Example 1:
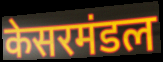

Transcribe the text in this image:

केसरमंडल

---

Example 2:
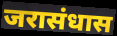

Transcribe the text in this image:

जरासंधास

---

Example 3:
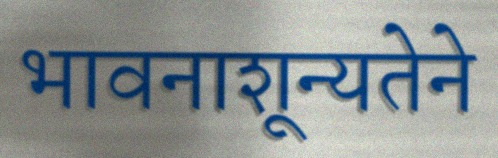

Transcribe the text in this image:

भावनाशून्यतेने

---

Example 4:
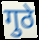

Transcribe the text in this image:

गुठे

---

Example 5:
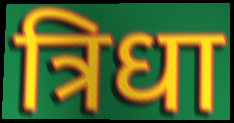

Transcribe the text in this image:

त्रिधा